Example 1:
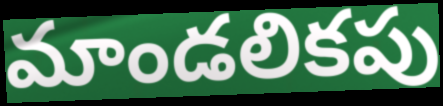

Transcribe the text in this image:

మాండలికపు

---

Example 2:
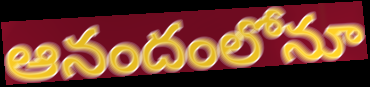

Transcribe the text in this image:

ఆనందంలోనూ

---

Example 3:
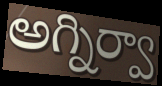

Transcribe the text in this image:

అగ్నిర్వా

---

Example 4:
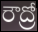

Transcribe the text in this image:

రౌద్రో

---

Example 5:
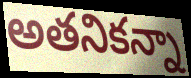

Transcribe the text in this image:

అతనికన్నా